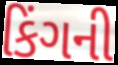
કિંગની